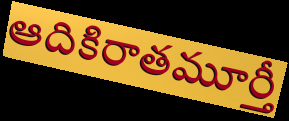
ఆదికిరాతమూర్తీ